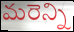
మరెన్ని